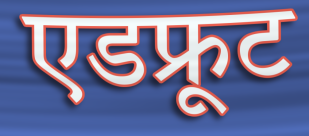
एडफ्रूट